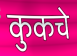
कुकचे